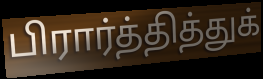
பிரார்த்தித்துக்